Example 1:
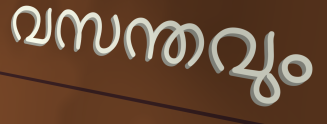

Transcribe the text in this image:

വസന്തവും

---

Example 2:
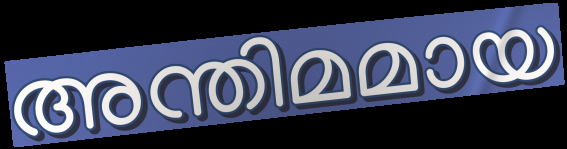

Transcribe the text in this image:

അന്തിമമായ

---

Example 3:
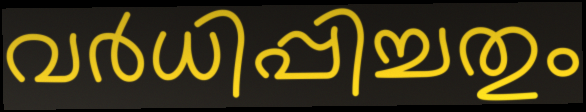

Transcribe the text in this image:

വർധിപ്പിച്ചതും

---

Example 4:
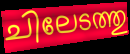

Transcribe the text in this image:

ചിലേടത്തു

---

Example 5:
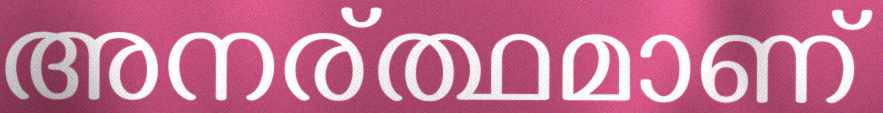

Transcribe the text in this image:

അനര്ത്ഥമാണ്